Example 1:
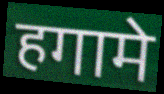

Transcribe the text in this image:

हगामे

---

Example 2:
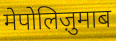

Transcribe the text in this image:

मेपोलिज़ुमाब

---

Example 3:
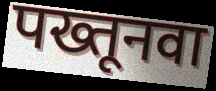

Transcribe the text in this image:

पख्तूनवा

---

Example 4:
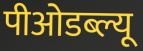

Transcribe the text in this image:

पीओडब्ल्यू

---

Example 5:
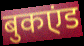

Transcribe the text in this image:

बुकएंड